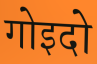
गोइदो